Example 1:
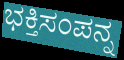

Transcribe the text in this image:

ಭಕ್ತಿಸಂಪನ್ನ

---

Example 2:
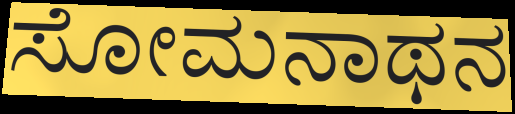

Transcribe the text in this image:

ಸೋಮನಾಥನ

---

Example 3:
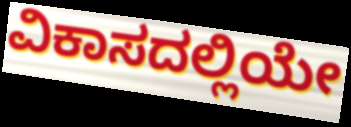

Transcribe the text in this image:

ವಿಕಾಸದಲ್ಲಿಯೇ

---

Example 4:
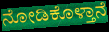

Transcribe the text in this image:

ನೋಡಿಕೊಳ್ತಾನೆ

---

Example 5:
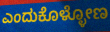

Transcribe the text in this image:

ಎಂದುಕೊಳ್ಳೋಣ